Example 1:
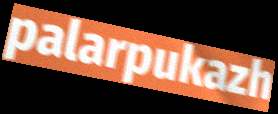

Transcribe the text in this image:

palarpukazh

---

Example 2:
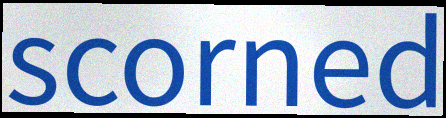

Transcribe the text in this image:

scorned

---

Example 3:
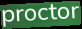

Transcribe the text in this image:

proctor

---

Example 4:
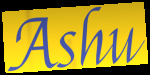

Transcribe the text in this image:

Ashu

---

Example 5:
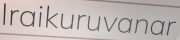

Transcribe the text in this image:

Iraikuruvanar